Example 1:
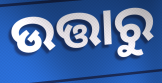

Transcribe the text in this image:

ଉତ୍ତାରୁ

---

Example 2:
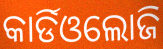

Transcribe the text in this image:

କାର୍ଡିଓଲୋଜି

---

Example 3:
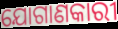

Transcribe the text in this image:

ଯୋଗାଣକାରୀ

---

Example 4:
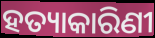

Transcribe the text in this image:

ହତ୍ୟାକାରିଣୀ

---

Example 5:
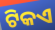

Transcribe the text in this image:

ଟିକଏ